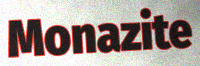
Monazite